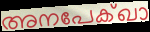
അനപേക്ഖാ